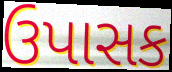
ઉપાસક